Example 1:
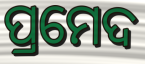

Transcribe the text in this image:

ପ୍ରମେଦ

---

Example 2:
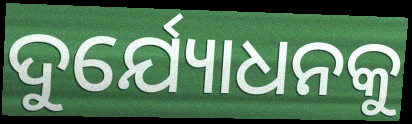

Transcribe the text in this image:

ଦୁର୍ଯ୍ୟୋଧନକୁ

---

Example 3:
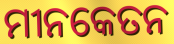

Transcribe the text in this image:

ମୀନକେତନ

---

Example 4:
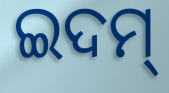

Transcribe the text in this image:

ଇଦମ୍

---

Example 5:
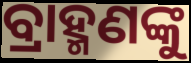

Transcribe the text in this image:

ବ୍ରାହ୍ମଣଙ୍କୁ